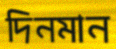
দিনমান